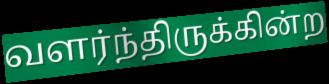
வளர்ந்திருக்கின்ற